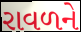
રાવળને